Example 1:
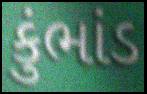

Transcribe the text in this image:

કુંભાંડ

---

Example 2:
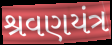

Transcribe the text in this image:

શ્રવણયંત્ર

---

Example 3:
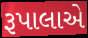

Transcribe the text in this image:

રૂપાલાએ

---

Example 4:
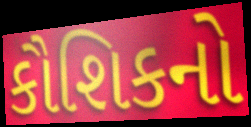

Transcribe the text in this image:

કૌશિકનો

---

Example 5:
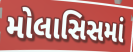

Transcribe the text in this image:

મોલાસિસમાં